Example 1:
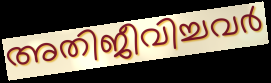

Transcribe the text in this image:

അതിജീവിച്ചവർ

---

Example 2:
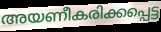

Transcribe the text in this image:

അയണീകരിക്കപ്പെട്ട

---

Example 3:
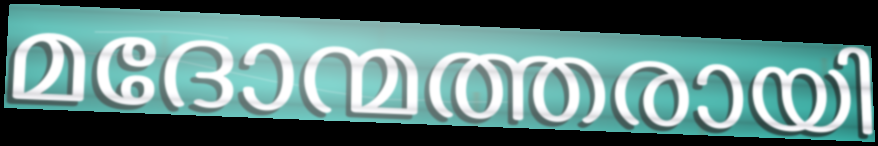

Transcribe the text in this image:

മദോന്മത്തരായി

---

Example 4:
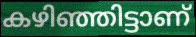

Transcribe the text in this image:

കഴിഞ്ഞിട്ടാണ്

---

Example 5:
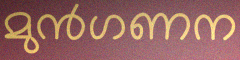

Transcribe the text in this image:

മുൻഗണന